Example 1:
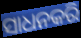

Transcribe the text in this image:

ସାଧନକରି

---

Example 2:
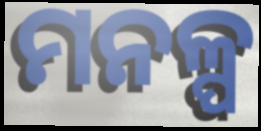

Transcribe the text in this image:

ମନଳ୍ପ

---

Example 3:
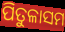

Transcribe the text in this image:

ପିତୁଳାସମ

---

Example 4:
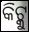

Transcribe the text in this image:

କିଟ୍କୁ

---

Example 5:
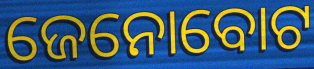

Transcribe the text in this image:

ଜେନୋବୋଟ